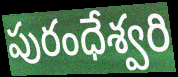
పురంధేశ్వరి